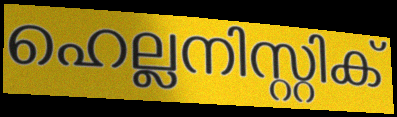
ഹെല്ലനിസ്റ്റിക്